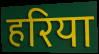
हरिया